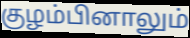
குழம்பினாலும்